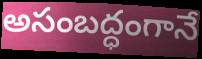
అసంబద్ధంగానే